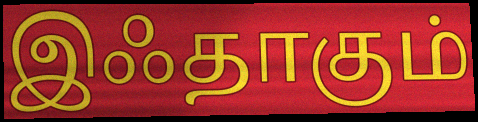
இஃதாகும்